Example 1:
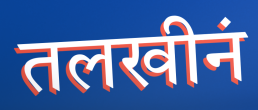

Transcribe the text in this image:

तलखीनं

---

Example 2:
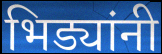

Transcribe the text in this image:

भिड्यांनी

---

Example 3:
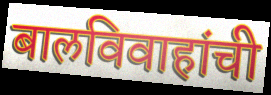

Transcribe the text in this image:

बालविवाहांची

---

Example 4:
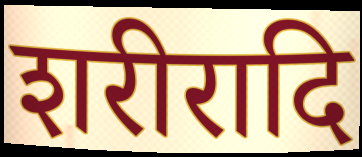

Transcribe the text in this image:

शरीरादि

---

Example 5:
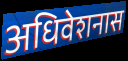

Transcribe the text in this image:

अधिवेशनास